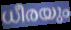
ധീരയും